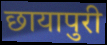
छायापुरी